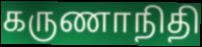
கருணாநிதி